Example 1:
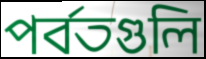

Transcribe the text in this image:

পর্বতগুলি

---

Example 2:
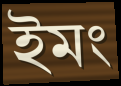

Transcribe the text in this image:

ইমং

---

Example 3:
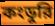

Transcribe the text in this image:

কংডুরি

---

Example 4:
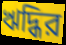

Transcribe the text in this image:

ঋদ্ধির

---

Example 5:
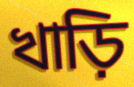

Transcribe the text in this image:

খাড়ি